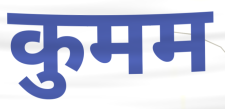
कुमम